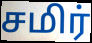
சமிர்